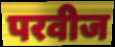
परवीज